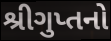
શ્રીગુપ્તનો